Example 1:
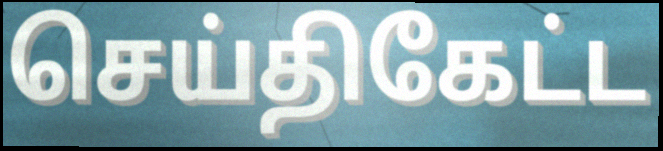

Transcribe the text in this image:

செய்திகேட்ட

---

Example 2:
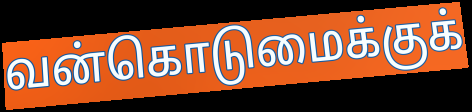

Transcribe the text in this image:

வன்கொடுமைக்குக்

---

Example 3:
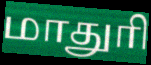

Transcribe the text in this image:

மாதுரி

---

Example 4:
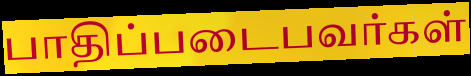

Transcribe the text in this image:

பாதிப்படைபவர்கள்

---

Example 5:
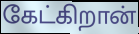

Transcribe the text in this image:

கேட்கிறான்